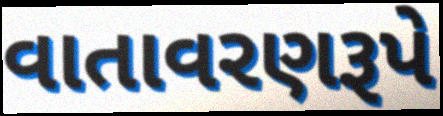
વાતાવરણરૂપે